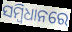
ସମ୍ବିଧାନରେ